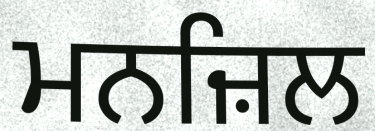
ਮਨਜ਼ਿਲ